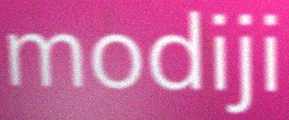
modiji